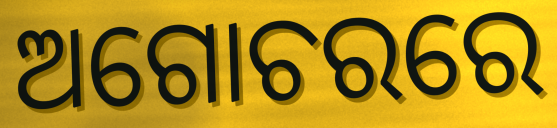
ଅଗୋଚରରେ